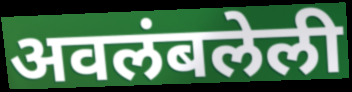
अवलंबलेली